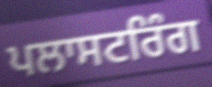
ਪਲਾਸਟਰਿੰਗ